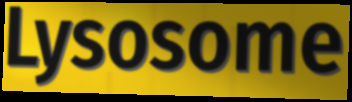
Lysosome